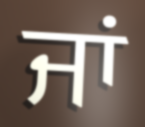
ਜਾਂ